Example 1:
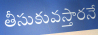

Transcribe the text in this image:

తీసుకువస్తారనే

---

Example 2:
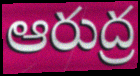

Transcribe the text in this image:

ఆరుద్ర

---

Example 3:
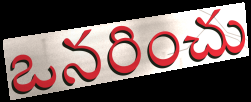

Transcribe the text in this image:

ఒనరించు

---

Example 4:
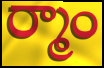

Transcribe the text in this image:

ర్మాం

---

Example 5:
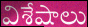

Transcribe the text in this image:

విశేషాలు